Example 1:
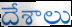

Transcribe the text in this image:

దేశాలు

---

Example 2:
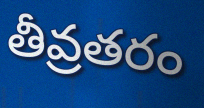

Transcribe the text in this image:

తీవ్రతరం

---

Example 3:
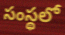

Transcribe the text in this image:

సంస్థలో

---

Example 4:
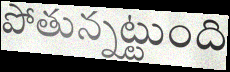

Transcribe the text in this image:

పోతున్నట్టుంది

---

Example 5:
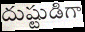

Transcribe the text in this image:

దుష్టుడిగా